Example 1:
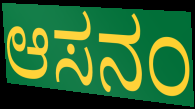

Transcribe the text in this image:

ಆಸನಂ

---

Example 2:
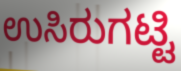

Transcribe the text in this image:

ಉಸಿರುಗಟ್ಟಿ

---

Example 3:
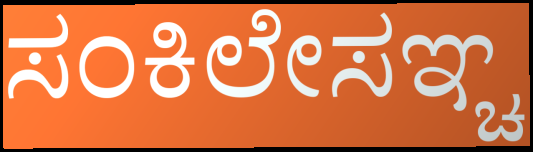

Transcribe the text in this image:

ಸಂಕಿಲೇಸಞ್ಚ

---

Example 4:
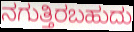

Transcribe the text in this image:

ನಗುತ್ತಿರಬಹುದು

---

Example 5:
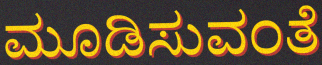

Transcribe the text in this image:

ಮೂಡಿಸುವಂತೆ